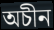
অচীন